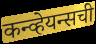
कन्व्हेयन्सची